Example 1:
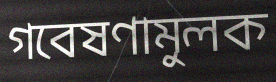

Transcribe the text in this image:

গবেষণামুলক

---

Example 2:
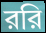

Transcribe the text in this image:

ররি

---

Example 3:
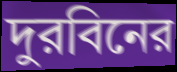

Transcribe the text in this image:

দুরবিনের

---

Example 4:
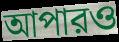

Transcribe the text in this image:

আপারও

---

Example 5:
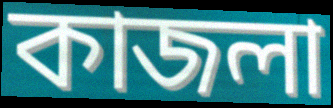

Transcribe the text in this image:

কাজলা